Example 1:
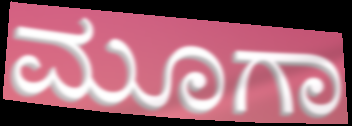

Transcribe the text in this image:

ಮೂಗಾ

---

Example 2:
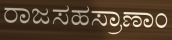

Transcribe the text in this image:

ರಾಜಸಹಸ್ರಾಣಾಂ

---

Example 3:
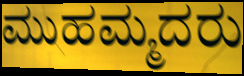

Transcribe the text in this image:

ಮುಹಮ್ಮದರು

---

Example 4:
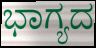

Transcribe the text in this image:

ಭಾಗ್ಯದ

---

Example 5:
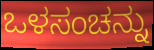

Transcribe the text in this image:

ಒಳಸಂಚನ್ನು